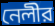
নেলীর